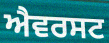
ਐਵਰਸਟ